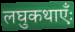
लघुकथाएँः